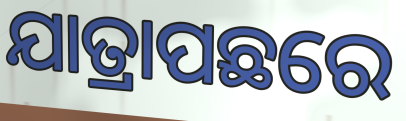
ଯାତ୍ରାପଛରେ